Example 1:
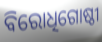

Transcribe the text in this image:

ବିରୋଧିଗୋଷ୍ଠୀ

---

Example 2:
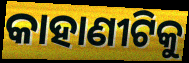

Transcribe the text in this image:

କାହାଣୀଟିକୁ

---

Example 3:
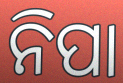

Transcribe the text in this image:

ନିପା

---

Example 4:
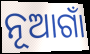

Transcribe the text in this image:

ନୂଆଗାଁ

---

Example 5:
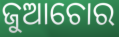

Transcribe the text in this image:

ଜୁଆଚୋର